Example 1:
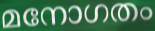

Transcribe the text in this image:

മനോഗതം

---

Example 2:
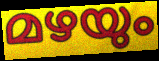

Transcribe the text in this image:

മഴയും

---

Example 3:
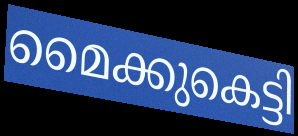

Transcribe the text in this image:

മൈക്കുകെട്ടി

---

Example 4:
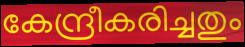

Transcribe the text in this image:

കേന്ദ്രീകരിച്ചതും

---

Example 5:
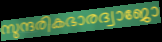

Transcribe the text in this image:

സുന്ദരികഭാരദ്വാജോ